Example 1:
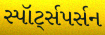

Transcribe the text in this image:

સ્પૉર્ટ્સપર્સન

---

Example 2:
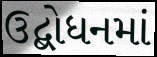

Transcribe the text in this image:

ઉદ્બોધનમાં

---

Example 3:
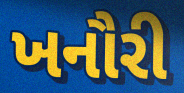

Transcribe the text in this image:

ખનૌરી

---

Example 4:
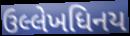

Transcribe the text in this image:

ઉલ્લેખધિનય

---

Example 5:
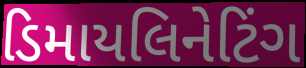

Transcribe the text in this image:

ડિમાયલિનેટિંગ